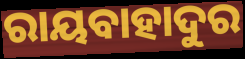
ରାୟବାହାଦୁର